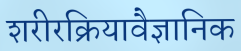
शरीरक्रियावैज्ञानिक